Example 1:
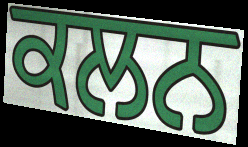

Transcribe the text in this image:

ਕਲਨ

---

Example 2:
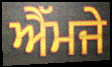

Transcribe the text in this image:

ਐੱਮਜੇ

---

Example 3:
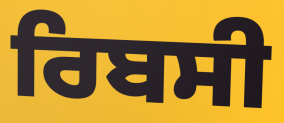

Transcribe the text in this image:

ਰਿਬਸੀ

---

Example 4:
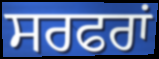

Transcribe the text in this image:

ਸਰਫਰਾਂ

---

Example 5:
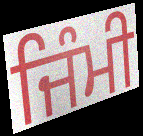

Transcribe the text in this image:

ਜਿੰਮੀ